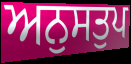
ਅਨੁਸਤੁਪ